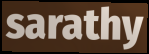
sarathy